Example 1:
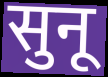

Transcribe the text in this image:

सुनू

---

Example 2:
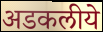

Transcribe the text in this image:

अडकलीये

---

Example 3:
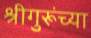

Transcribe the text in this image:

श्रीगुरूंच्या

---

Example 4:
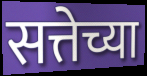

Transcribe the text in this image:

सत्तेच्या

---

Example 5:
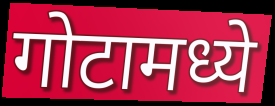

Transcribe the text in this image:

गोटामध्ये